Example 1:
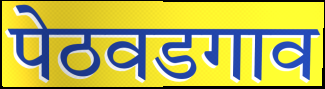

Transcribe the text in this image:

पेठवडगाव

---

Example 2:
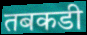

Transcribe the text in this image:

तबकडी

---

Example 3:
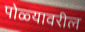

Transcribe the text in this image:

पोळ्यावरील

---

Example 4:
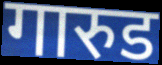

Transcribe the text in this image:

गारुड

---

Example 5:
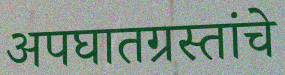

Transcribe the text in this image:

अपघातग्रस्तांचे